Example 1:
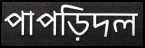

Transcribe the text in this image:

পাপড়িদল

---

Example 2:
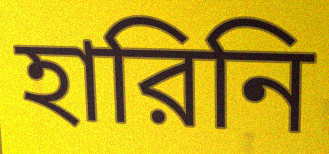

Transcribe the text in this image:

হারিনি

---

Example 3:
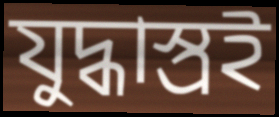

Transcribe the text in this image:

যুদ্ধাস্ত্রই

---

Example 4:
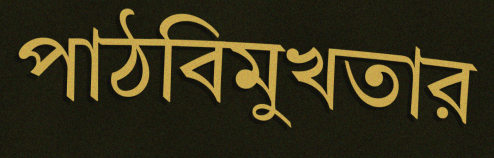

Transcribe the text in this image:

পাঠবিমুখতার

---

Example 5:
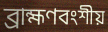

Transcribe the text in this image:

ব্রাহ্মণবংশীয়